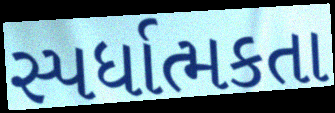
સ્પર્ધાત્મકતા